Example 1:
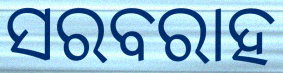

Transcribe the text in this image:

ସରବରାହ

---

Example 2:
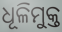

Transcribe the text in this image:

ଧୂଳିମୁକ୍ତ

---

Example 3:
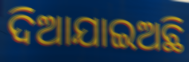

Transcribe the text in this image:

ଦିଆଯାଇଅଛି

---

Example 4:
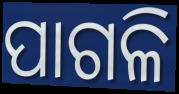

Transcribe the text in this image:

ପାଗଳି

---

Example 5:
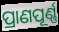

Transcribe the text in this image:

ପ୍ରାଣପୂର୍ଣ୍ଣ